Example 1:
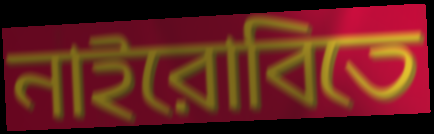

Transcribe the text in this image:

নাইরোবিতে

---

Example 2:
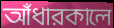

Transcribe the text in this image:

আঁধারকালে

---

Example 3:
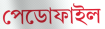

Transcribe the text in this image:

পেডোফাইল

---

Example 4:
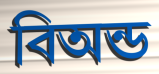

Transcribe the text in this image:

বিঅন্ড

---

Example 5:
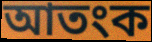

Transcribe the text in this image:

আতংক